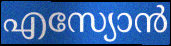
എസ്യോൻ